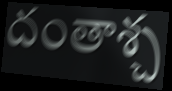
దంతాశ్చ